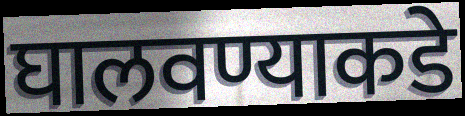
घालवण्याकडे